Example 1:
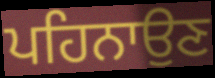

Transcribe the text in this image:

ਪਹਿਨਾਉਣ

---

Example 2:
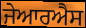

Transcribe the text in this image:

ਜੇਆਰਐਸ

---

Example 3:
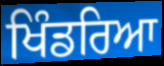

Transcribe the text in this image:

ਖਿੰਡਰਿਆ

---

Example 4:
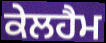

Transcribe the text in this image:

ਕੇਲਹੈਮ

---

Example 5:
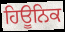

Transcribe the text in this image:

ਹਿਊਨਿਕ